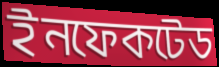
ইনফেকটেড